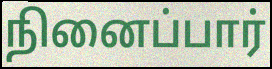
நினைப்பார்